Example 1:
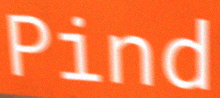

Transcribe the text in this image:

Pind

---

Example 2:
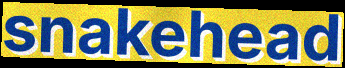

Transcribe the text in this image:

snakehead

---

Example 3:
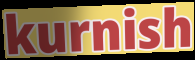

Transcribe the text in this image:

kurnish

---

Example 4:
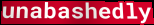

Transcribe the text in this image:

unabashedly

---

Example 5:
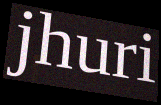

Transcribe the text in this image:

jhuri